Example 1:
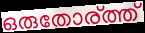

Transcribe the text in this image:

ഒരുതോര്ത്ത്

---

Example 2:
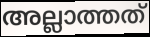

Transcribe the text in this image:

അല്ലാത്തത്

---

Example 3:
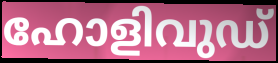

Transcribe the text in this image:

ഹോളിവുഡ്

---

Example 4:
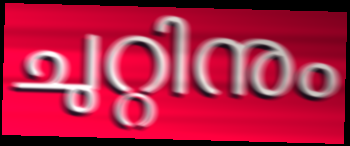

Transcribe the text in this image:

ചുറ്റിനും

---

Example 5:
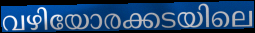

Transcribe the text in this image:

വഴിയോരക്കടയിലെ